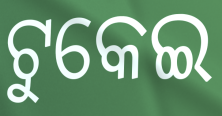
ଟୁକେଇ